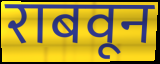
राबवून